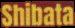
Shibata